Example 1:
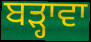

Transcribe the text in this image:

ਬੜ੍ਹਾਵਾ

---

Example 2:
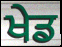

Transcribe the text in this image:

ਖੇਡ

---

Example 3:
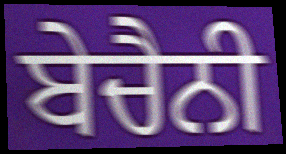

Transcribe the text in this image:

ਬੇਚੈਨੀ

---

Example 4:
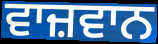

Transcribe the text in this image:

ਵਾਜ਼ਵਾਨ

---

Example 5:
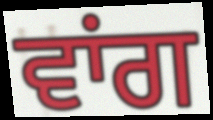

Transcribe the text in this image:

ਵਾਂਗ